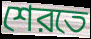
শেরতে